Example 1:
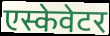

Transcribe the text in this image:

एस्केवेटर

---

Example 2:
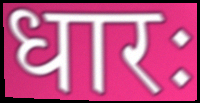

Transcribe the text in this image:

धारः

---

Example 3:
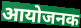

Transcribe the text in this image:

आयोजनक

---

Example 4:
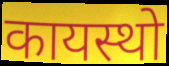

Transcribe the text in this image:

कायस्थो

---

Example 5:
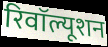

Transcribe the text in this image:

रिवॉल्यूशन